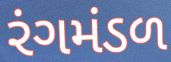
રંગમંડળ